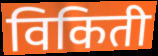
विकिती